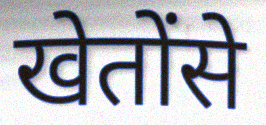
खेतोंसे